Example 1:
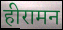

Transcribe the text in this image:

हीरामन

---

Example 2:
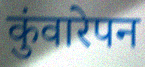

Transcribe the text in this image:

कुंवारेपन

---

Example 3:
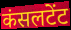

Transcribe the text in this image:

कंसलटेंट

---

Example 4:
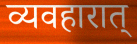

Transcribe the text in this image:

व्यवहारात्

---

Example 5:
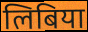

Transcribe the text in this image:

लिबिया